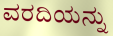
ವರದಿಯನ್ನು